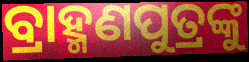
ବ୍ରାହ୍ମଣପୁତ୍ରଙ୍କୁ